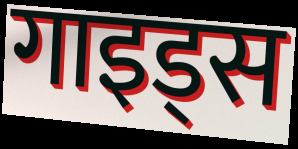
गाइड्स